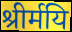
श्रीर्मयि